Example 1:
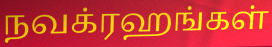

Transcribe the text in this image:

நவக்ரஹங்கள்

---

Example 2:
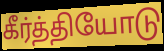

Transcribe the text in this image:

கீர்த்தியோடு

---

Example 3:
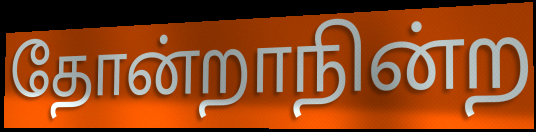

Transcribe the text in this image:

தோன்றாநின்ற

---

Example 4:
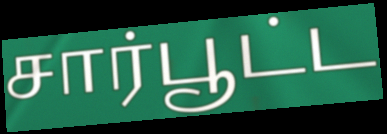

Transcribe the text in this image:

சார்பூட்ட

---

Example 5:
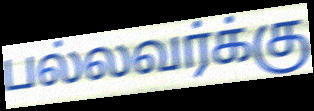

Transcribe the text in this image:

பல்லவர்க்கு